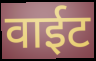
वाईट